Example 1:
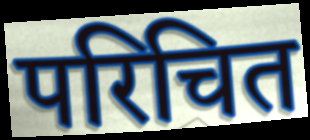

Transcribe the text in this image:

परिचित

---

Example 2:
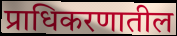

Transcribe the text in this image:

प्राधिकरणातील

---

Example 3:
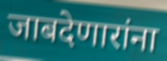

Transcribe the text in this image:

जाबदेणारांना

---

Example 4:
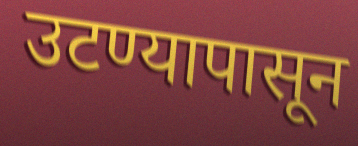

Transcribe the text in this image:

उटण्यापासून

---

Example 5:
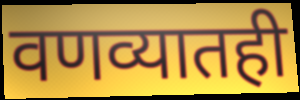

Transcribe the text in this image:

वणव्यातही